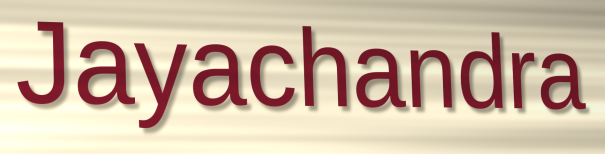
Jayachandra